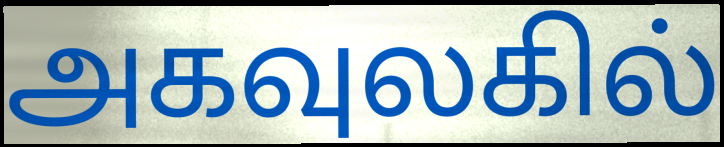
அகவுலகில்